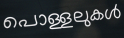
പൊള്ളലുകൾ